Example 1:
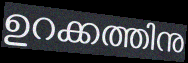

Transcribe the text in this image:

ഉറക്കത്തിനു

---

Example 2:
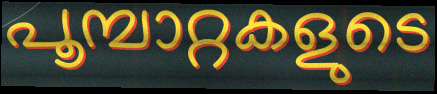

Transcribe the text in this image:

പൂമ്പാറ്റകളുടെ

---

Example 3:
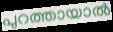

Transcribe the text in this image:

പുറത്തായാൽ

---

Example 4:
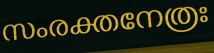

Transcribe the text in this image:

സംരക്തനേത്രഃ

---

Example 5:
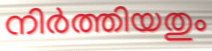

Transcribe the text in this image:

നിർത്തിയതും